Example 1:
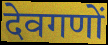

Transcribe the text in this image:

देवगणों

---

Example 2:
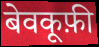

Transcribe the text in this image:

बेवकूफ़ी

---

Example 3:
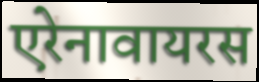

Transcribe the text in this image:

एरेनावायरस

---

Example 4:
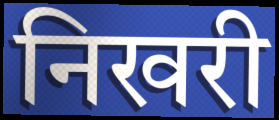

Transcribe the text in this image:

निखरी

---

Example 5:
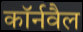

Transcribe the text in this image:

कॉर्नवैल